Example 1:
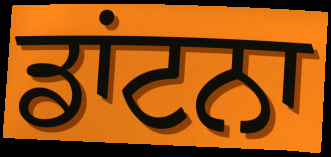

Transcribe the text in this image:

ਡਾਂਟਨਾ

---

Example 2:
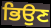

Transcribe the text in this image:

ਭਿਉਣ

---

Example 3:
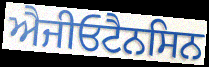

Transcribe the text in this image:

ਐਜੀਓਟੈਨਸਿਨ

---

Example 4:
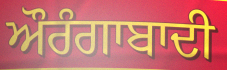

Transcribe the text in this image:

ਔਰੰਗਾਬਾਦੀ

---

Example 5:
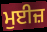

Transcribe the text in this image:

ਮੁਈਜ਼